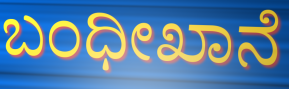
ಬಂಧೀಖಾನೆ